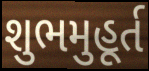
શુભમુહૂર્ત